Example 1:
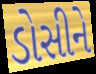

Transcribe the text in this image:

ડોસીને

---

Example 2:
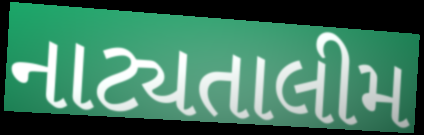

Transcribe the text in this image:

નાટ્યતાલીમ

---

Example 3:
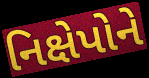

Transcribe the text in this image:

નિક્ષેપોને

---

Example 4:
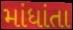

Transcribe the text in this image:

માંધાંતા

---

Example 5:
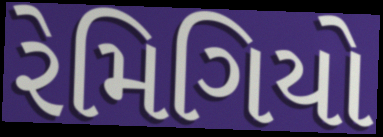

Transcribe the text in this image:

રેમિગિયો